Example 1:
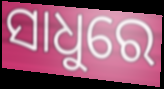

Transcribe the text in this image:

ସାଧୁରେ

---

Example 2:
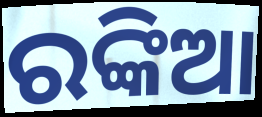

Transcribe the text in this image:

ରଙ୍କିଆ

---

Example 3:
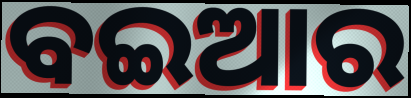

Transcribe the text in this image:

ବଇଆର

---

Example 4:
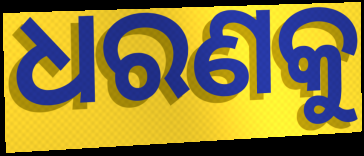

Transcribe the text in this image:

ଧରଣକୁ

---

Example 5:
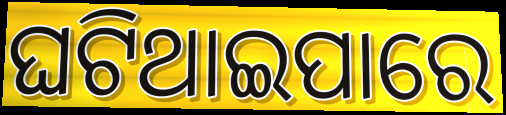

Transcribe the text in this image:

ଘଟିଥାଇପାରେ